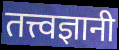
तत्त्वज्ञानी